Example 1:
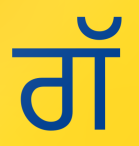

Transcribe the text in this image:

ਗੱ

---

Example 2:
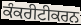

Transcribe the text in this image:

ਕੰਕਰੀਟੀਕਰਨ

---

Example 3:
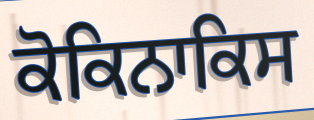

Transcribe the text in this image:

ਕੋਕਿਨਾਕਿਸ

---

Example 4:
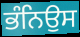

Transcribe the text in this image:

ਭੰਨਿਉਸ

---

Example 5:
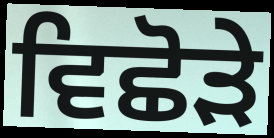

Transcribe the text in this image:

ਵਿਛੋੜੇ